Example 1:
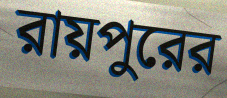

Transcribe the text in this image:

রায়পুরের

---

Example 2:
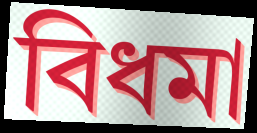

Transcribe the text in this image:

বিধমা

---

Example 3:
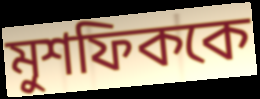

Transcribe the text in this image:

মুশফিককে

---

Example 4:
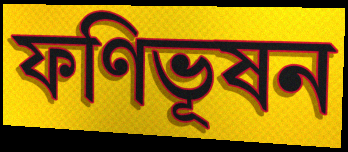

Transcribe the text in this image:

ফণিভূষন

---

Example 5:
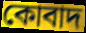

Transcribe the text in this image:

কোবাদ